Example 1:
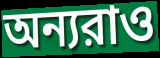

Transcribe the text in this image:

অন্যরাও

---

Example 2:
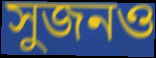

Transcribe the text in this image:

সুজনও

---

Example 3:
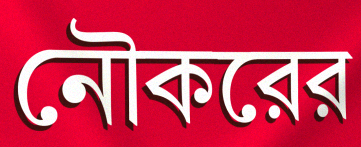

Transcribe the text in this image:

নৌকরের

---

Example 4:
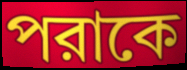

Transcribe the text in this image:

পরাকে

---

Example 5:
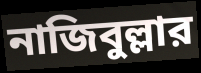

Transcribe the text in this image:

নাজিবুল্লার